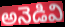
అనెడివి